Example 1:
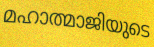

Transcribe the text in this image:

മഹാത്മാജിയുടെ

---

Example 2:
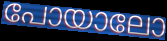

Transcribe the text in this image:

പോയാലോ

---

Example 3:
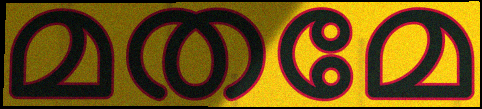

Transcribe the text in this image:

മതമേ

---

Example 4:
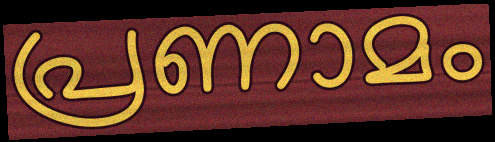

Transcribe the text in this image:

പ്രണാമം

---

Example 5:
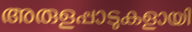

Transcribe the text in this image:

അരുളപ്പാടുകളായി